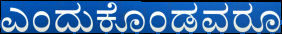
ಎಂದುಕೊಂಡವರೂ